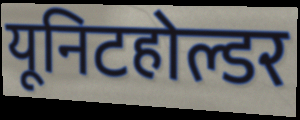
यूनिटहोल्डर